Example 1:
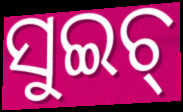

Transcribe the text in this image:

ସୁଇଚ୍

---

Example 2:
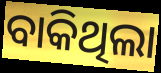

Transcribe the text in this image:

ବାକିଥିଲା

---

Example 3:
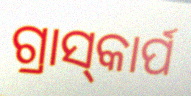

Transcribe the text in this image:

ଗ୍ରାସ୍‌କାର୍ପ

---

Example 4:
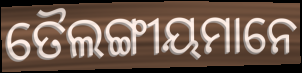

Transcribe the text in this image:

ତୈଲଙ୍ଗୀୟମାନେ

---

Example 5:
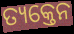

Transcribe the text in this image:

ତ୍ୟକ୍ତେନ